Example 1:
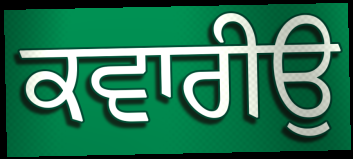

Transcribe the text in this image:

ਕਵਾਰੀਉ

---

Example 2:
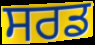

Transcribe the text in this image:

ਸਰਡ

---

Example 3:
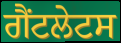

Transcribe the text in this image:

ਗੈਂਟਲੇਟਸ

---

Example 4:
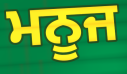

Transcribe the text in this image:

ਮਨੂਜ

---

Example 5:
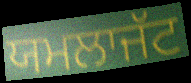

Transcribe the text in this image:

ਯਮਲਾਜੱਟ